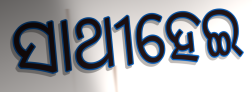
ସାଥୀହେଇ